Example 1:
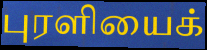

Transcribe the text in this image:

புரளியைக்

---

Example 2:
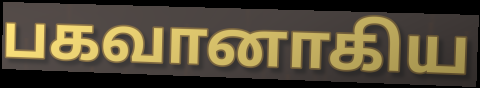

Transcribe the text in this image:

பகவானாகிய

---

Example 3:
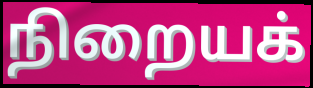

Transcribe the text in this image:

நிறையக்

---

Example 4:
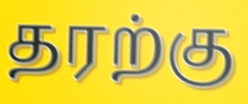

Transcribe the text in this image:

தரற்கு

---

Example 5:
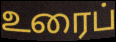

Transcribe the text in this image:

உரைப்